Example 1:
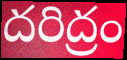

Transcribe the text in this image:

దరిద్రం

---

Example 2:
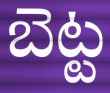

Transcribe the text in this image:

బెట్ట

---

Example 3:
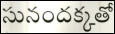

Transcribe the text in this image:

సునందక్కతో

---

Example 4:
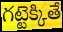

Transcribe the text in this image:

గట్టెక్కితే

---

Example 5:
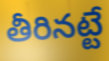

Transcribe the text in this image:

తీరినట్టే